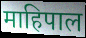
माहिपाल